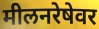
मीलनरेषेवर